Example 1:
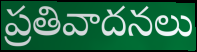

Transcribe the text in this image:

ప్రతివాదనలు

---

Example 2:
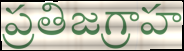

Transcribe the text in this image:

ప్రతిజగ్రాహ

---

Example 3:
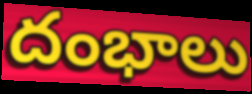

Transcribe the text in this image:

దంభాలు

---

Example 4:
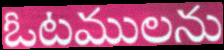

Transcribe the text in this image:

ఓటములను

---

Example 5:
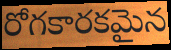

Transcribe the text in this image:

రోగకారకమైన